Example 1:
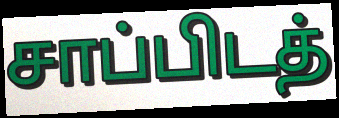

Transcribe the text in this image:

சாப்பிடத்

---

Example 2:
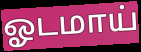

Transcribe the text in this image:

ஓடமாய்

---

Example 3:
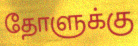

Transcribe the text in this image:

தோளுக்கு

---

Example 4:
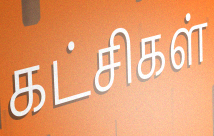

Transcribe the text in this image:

கட்சிகள்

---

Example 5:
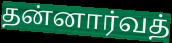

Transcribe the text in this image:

தன்னார்வத்